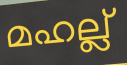
മഹല്ല്